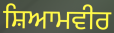
ਸ਼ਿਆਮਵੀਰ